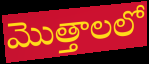
మొత్తాలలో